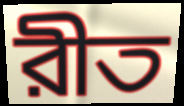
রীত